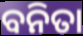
ବନିତା